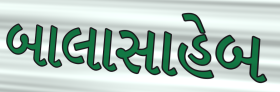
બાલાસાહેબ